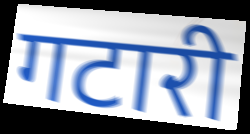
गटारी